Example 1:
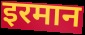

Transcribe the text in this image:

इरमान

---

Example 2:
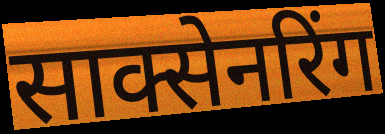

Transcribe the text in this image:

साक्सेनरिंग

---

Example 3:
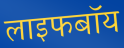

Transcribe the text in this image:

लाइफबॉय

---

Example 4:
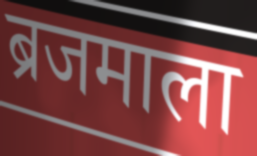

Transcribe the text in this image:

ब्रजमाला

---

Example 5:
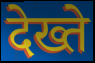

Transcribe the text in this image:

देख्ते